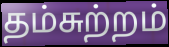
தம்சுற்றம்